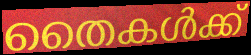
തൈകൾക്ക്